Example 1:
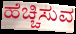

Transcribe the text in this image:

ಹೆಚ್ಚಿಸುವ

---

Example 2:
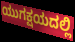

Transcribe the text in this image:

ಯುಗಕ್ಷಯದಲ್ಲಿ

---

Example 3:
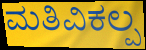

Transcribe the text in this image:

ಮತಿವಿಕಲ್ಪ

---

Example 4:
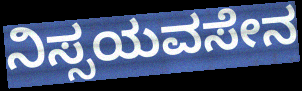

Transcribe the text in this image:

ನಿಸ್ಸಯವಸೇನ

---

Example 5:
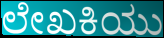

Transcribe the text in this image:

ಲೇಖಕಿಯು